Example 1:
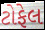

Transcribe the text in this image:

ટોફેલ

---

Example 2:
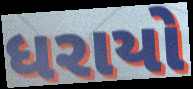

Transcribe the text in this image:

ધરાયો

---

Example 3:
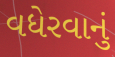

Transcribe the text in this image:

વધેરવાનું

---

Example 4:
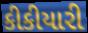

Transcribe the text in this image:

કીકીયારી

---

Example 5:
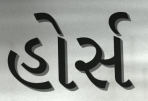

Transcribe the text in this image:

હોર્સ